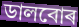
ডালবোৰ